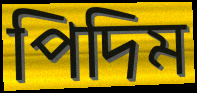
পিদিম